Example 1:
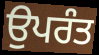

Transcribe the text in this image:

ਉਪਰੰਤ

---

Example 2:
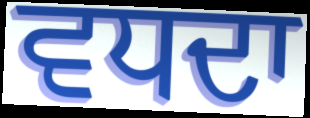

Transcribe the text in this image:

ਵਧਦਾ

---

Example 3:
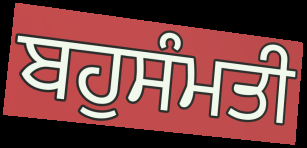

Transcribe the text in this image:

ਬਹੁਸੰਮਤੀ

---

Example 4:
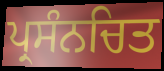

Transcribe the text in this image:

ਪ੍ਰਸੰਨਚਿਤ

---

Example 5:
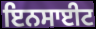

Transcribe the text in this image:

ਇਨਸਾਈਟ